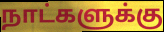
நாட்களுக்கு